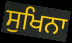
ਸੁਖਿਨਾ